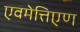
एवमेत्तिएण